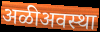
अळीअवस्था